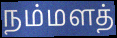
நம்மளத்